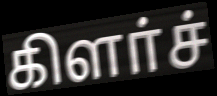
கிளர்ச்